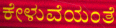
ಕೇಳುವೆಯಂತೆ